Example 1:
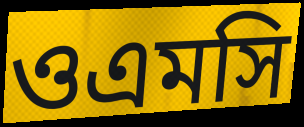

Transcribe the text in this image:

ওএমসি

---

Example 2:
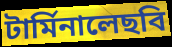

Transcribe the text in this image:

টার্মিনালেছবি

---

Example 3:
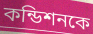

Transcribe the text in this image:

কন্ডিশনকে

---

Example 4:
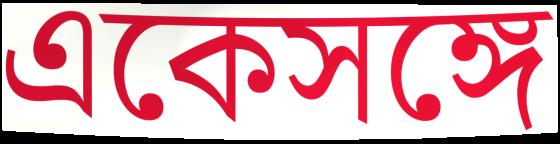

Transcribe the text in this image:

একেসঙ্গে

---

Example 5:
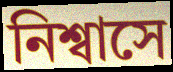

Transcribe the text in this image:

নিশ্বাসে